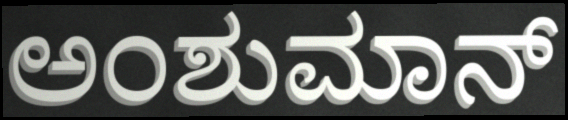
ಅಂಶುಮಾನ್